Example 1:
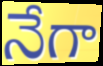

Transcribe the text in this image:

నేగా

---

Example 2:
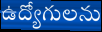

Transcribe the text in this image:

ఉద్యోగులను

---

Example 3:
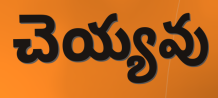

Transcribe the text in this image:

చెయ్యవు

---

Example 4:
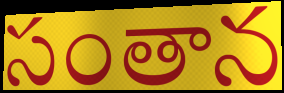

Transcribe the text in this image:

సంతాన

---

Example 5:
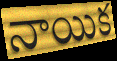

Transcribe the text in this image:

నాయిక